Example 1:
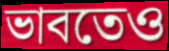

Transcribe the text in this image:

ভাবতেও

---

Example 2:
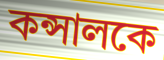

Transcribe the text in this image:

কন্সালকে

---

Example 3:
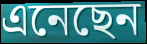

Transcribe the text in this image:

এনেছেন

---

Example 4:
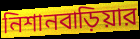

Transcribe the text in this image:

নিশানবাড়িয়ার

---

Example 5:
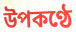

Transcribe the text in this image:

উপকণ্ঠে